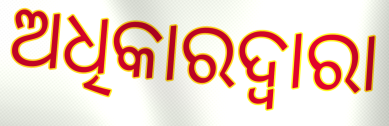
ଅଧିକାରଦ୍ୱାରା